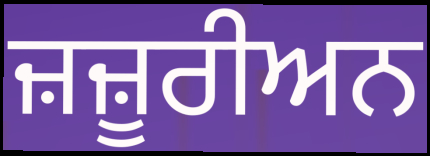
ਜ਼ਜ਼ੂਰੀਅਨ